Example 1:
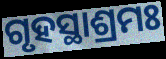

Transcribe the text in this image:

ଗୃହସ୍ଥାଶ୍ରମଃ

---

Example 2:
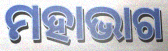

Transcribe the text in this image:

ମହାଭାଗ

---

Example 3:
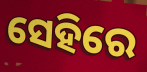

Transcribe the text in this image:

ସେହିରେ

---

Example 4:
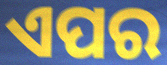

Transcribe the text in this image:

ଏପର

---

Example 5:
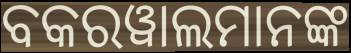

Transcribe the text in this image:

ବକରୱାଲମାନଙ୍କ